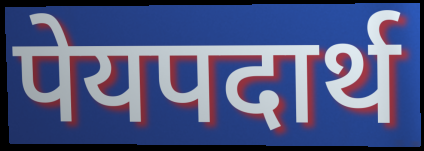
पेयपदार्थ